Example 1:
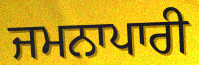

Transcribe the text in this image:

ਜਮਨਾਪਾਰੀ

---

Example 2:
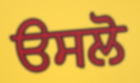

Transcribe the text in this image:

ੳਸਲੋ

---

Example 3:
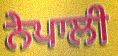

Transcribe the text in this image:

ਨੇਪਾਲੀ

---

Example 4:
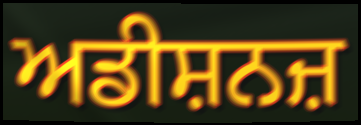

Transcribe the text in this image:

ਅਡੀਸ਼ਨਜ਼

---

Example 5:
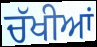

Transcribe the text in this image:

ਚੱਖੀਆਂ